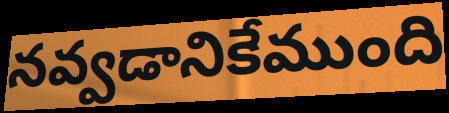
నవ్వడానికేముంది